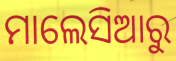
ମାଲେସିଆରୁ